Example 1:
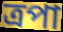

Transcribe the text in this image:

ত্রপা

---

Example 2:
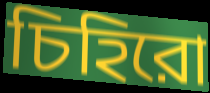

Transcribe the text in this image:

চিহিরো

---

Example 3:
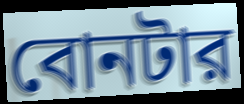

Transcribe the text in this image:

বোনটার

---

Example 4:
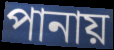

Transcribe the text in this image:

পানায়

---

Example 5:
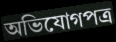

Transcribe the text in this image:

অভিযোগপত্র